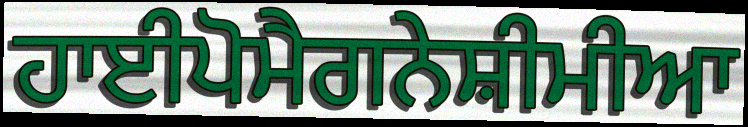
ਹਾਈਪੋਮੈਗਨੇਸ਼ੀਮੀਆ